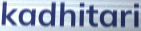
kadhitari